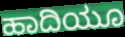
ಹಾದಿಯೂ